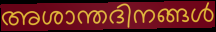
അശാന്തദിനങ്ങൾ